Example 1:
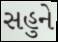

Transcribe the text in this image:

સહુને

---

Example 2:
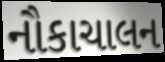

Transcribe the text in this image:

નૌકાચાલન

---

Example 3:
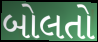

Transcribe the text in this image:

બોલતો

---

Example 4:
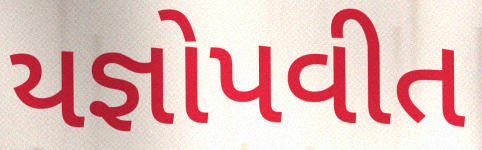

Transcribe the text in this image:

યજ્ઞોપવીત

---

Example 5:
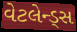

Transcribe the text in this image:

વેટલેન્ડ્સ